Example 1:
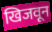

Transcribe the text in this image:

खिजवून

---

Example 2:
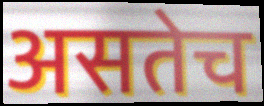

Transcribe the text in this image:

असतेच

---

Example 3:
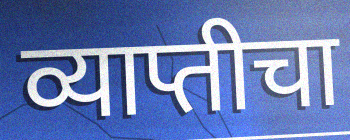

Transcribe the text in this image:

व्याप्तीचा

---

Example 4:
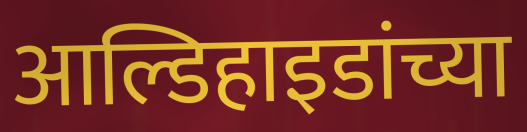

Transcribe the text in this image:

आल्डिहाइडांच्या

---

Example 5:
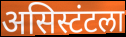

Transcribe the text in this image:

असिस्टंटला